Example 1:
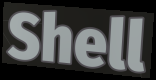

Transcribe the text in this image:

Shell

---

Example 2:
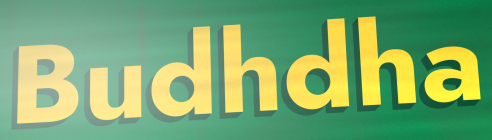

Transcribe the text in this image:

Budhdha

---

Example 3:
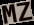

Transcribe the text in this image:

MZ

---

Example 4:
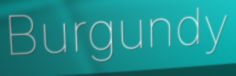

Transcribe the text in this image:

Burgundy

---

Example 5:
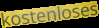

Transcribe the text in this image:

kostenloses